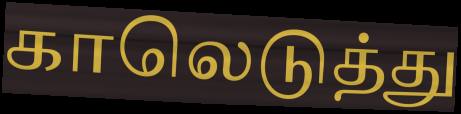
காலெடுத்து